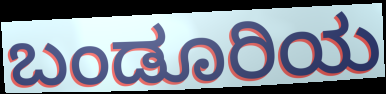
ಬಂಡೂರಿಯ